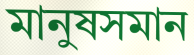
মানুষসমান